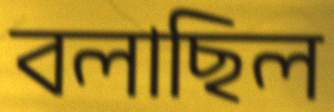
বলাছিল